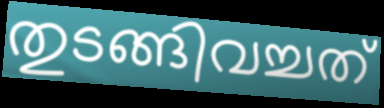
തുടങ്ങിവച്ചത്